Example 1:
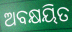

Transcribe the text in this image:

ଅବକ୍ଷୟିତ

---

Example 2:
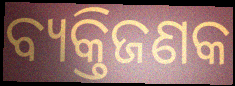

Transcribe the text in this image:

ବ୍ୟକ୍ତିଜଣକ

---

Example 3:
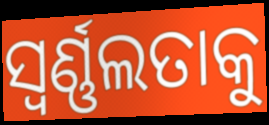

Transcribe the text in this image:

ସ୍ଵର୍ଣ୍ଣଲତାକୁ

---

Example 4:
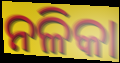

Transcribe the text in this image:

ନଳିକା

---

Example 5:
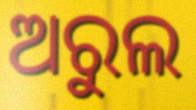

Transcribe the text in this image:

ଅରୁଲ